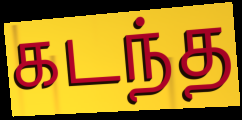
கடந்த